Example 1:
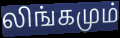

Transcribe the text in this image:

லிங்கமும்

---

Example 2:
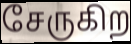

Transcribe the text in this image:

சேருகிற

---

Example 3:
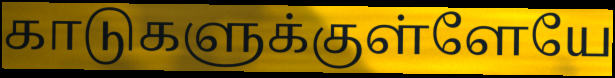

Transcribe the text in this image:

காடுகளுக்குள்ளேயே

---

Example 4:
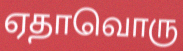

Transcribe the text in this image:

ஏதாவொரு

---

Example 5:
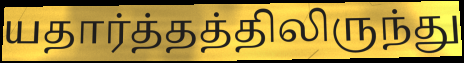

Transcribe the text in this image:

யதார்த்தத்திலிருந்து